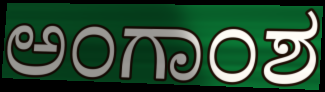
ಅಂಗಾಂಶ